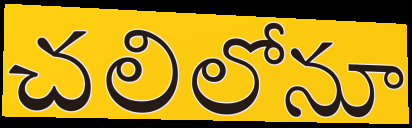
చలిలోనూ